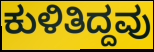
ಕುಳಿತಿದ್ದವು